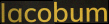
Iacobum